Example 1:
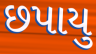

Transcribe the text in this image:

છપાયુ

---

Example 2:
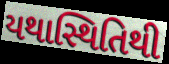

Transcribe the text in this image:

યથાસ્થિતિથી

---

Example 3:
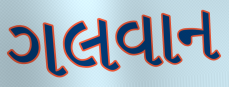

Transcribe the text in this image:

ગલવાન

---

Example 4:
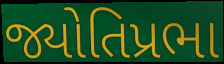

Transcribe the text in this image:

જ્યોતિપ્રભા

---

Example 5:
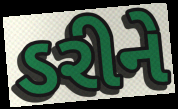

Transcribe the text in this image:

ડરીને